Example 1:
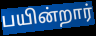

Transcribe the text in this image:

பயின்றார்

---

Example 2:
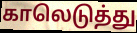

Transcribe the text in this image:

காலெடுத்து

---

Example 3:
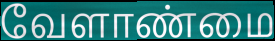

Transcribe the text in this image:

வேளாண்மை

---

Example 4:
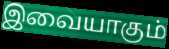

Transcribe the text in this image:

இவையாகும்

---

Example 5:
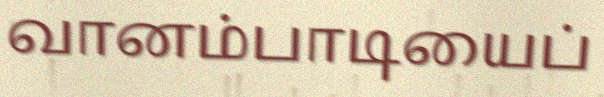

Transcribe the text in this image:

வானம்பாடியைப்